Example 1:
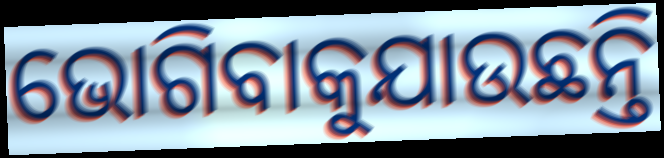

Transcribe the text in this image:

ଭୋଗିବାକୁଯାଉଛନ୍ତି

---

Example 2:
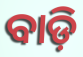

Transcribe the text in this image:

ବାଡ଼ି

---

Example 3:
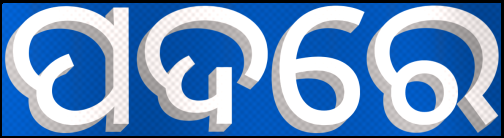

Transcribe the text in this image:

ପଦରେ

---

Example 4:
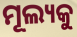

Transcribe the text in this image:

ମୂଲ୍ୟକୁ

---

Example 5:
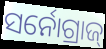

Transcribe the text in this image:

ସର୍ନୋଗ୍ରାଜ୍